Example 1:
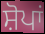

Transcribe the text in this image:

ਸ਼ੋਪਾਂ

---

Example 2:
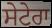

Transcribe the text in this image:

ਸੇਟੇਰਾ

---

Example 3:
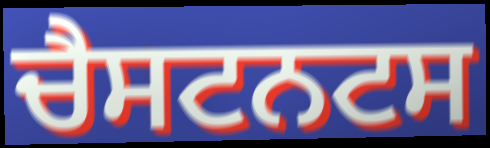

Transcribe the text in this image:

ਚੈਸਟਨਟਸ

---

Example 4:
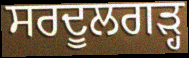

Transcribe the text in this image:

ਸਰਦੂਲਗੜ੍ਹ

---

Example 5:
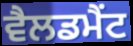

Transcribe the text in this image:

ਵੈਲਡਮੈਂਟ